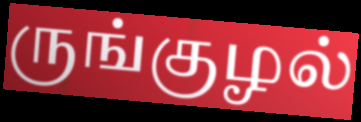
ருங்குழல்